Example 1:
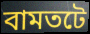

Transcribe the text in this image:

বামতটে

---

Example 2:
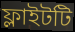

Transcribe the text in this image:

ফ্লাইটটি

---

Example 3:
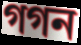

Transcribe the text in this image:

গগন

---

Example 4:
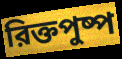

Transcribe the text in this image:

রিক্তপুষ্প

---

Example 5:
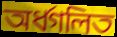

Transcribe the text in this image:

অর্ধগলিত